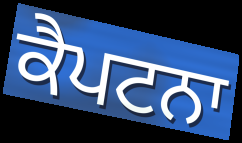
ਕੈਪਟਨਾ